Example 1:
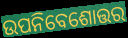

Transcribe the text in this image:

ଉପନିବେଶୋତ୍ତର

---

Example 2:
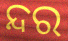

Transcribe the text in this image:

ନ୍ଦର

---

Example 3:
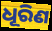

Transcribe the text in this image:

ଧୂରିଣ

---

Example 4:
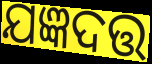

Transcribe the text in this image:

ଯଜ୍ଞଦତ୍ତ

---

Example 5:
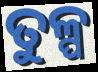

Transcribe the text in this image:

ତୁଳ୍ପ